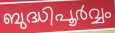
ബുദ്ധിപൂർവ്വം